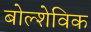
बोल्शेविक